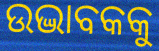
ଉଦ୍ଭାବକକୁ